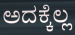
ಅದಕ್ಕೆಲ್ಲ